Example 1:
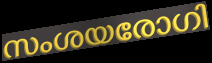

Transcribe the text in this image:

സംശയരോഗി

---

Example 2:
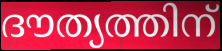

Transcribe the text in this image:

ദൗത്യത്തിന്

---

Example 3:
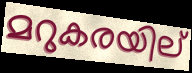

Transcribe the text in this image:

മറുകരയില്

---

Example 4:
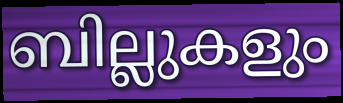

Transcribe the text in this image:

ബില്ലുകളും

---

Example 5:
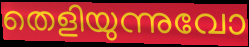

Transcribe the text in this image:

തെളിയുന്നുവോ